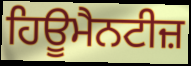
ਹਿਊਮੈਨਟੀਜ਼